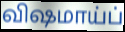
விஷமாய்ப்